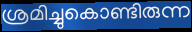
ശ്രമിച്ചുകൊണ്ടിരുന്ന